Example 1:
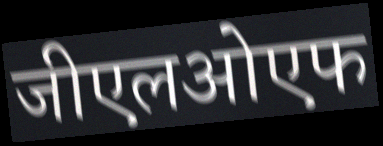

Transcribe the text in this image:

जीएलओएफ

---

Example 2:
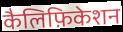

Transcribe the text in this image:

कैलिफ़िकेशन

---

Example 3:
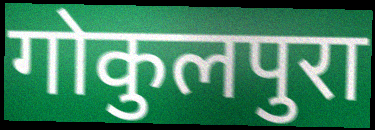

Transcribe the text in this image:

गोकुलपुरा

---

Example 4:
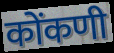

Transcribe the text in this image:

कोंकणी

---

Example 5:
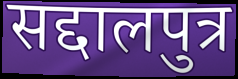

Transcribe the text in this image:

सद्दालपुत्र